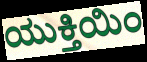
ಯುಕ್ತಿಯಿಂ